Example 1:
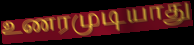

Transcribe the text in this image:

உணரமுடியாது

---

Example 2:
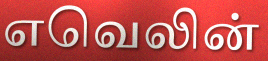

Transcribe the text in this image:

எவெலின்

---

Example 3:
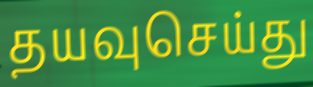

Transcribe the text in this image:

தயவுசெய்து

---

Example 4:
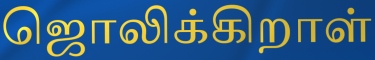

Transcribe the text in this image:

ஜொலிக்கிறாள்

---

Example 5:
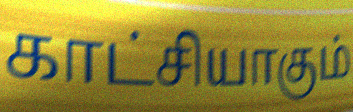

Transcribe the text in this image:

காட்சியாகும்